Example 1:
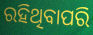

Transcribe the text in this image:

ରହିଥିବାପରି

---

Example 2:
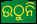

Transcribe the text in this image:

ଉଠୁନି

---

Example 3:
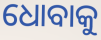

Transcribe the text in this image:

ଧୋବାକୁ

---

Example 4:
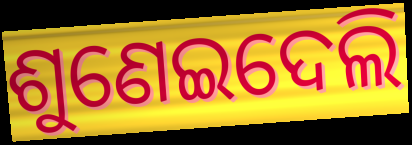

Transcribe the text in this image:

ଶୁଣେଇଦେଲି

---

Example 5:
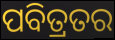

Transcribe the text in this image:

ପବିତ୍ରତର